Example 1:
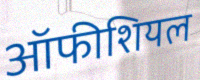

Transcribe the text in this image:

ऑफीशियल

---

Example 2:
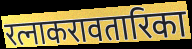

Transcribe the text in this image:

रत्नाकरावतारिका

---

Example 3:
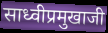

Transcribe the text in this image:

साध्वीप्रमुखाजी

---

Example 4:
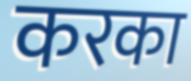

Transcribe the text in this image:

करका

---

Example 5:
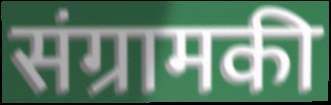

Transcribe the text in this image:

संग्रामकी